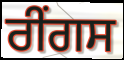
ਰੀਂਗਸ